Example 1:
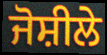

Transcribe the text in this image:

ਜੋਸ਼ੀਲੇ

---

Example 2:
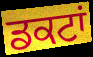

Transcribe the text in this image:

ਡਕਟਾਂ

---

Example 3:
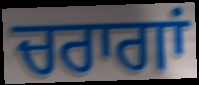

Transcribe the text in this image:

ਚਰਾਗਾਂ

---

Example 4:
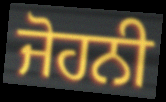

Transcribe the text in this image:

ਜੋਹਨੀ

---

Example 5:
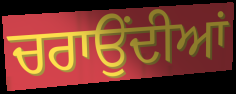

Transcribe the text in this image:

ਚਰਾਉਂਦੀਆਂ